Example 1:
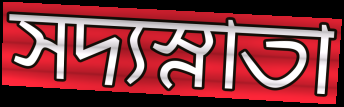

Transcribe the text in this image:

সদ্যস্নাতা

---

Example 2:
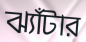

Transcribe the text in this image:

ঝ্যাঁটার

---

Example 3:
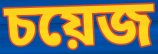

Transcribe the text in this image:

চয়েজ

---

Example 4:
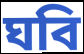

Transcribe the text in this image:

ঘবি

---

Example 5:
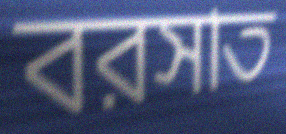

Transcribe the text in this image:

বরসাত